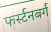
फर्स्टनबर्ग